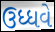
ઉધ્ધવે